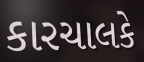
કારચાલકે